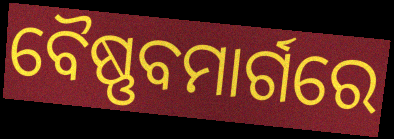
ବୈଷ୍ଣବମାର୍ଗରେ